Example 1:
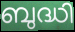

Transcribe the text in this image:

ബുദ്ധി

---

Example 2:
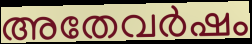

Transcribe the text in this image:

അതേവർഷം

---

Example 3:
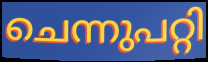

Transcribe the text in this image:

ചെന്നുപറ്റി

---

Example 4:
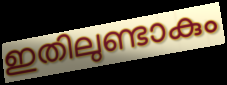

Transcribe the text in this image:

ഇതിലുണ്ടാകും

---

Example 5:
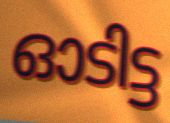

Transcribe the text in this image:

ഓടിട്ട